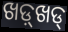
ଖଡ଼୍‌ଖଡ୍